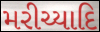
મરીચ્યાદિ